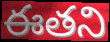
ఈతని